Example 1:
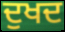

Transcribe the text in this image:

ਦੁਖਦ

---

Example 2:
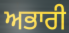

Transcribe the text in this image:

ਅਭਾਰੀ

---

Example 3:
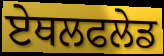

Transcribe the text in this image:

ਏਥਲਫਲੇਡ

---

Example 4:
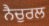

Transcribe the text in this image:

ਨੈਚੁਰਲ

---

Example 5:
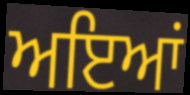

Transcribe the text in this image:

ਅਇਆਂ